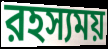
রহস্যময়